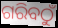
ଗରିବଠୁଁ